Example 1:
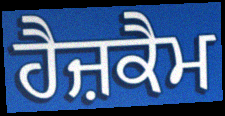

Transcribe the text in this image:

ਹੈਜ਼ਕੈਮ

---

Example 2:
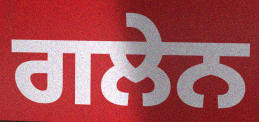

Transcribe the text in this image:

ਗਲੇਨ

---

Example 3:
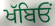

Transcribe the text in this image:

ਖੱਬਿਓਂ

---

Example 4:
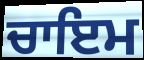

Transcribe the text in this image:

ਚਾਇਮ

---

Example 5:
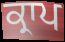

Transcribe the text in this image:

ਕ੍ਰਾਪ